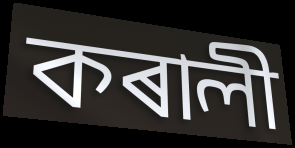
কৰালী